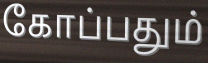
கோப்பதும்